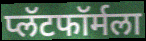
प्लॅटफॉर्मला